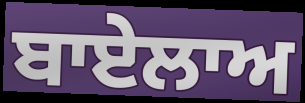
ਬਾਏਲਾਅ